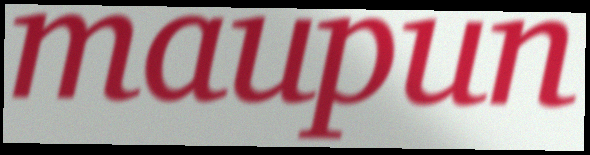
maupun